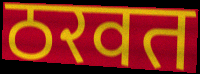
ठरवत